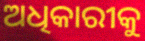
ଅଧିକାରୀକୁ